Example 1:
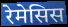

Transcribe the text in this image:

रेमेसिस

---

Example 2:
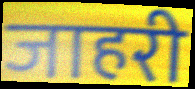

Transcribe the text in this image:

जाहरी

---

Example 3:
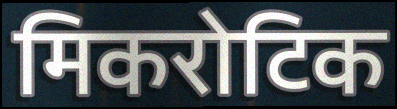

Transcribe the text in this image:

मिकरोटिक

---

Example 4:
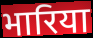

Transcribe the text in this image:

भारिया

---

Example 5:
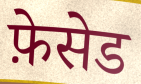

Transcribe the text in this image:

फ़ेसेड